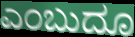
ಎಂಬುದೂ